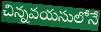
చిన్నవయసులోనే